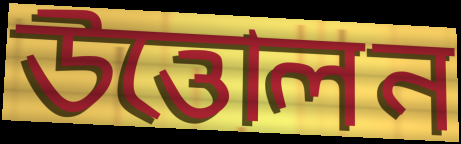
উত্তোলন